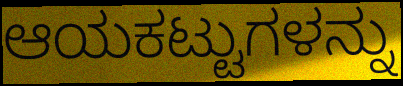
ಆಯಕಟ್ಟುಗಳನ್ನು